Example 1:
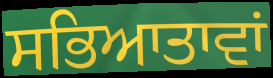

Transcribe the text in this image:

ਸਭਿਆਤਾਵਾਂ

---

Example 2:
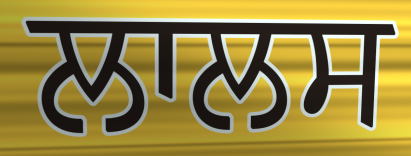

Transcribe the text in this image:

ਲਾਲਸ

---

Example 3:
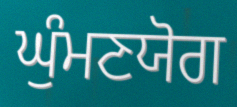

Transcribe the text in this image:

ਘੁੰਮਣਯੋਗ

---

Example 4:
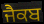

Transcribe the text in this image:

ਜੈਕਬ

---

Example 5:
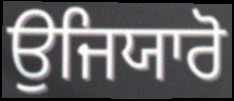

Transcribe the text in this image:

ਉਜਿਯਾਰੋ